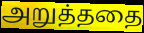
அறுத்ததை